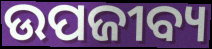
ଉପଜୀବ୍ୟ